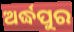
ଅର୍ଦ୍ଧପୁର